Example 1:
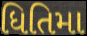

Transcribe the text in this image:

ધિતિમા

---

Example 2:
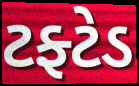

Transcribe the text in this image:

ટફ્ટેડ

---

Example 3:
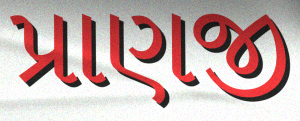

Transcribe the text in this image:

પ્રાણજી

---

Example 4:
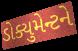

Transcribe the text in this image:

ડોક્યુમેન્ટને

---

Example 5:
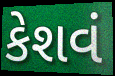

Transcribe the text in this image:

કેશવં